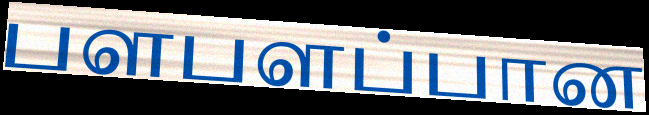
பளபளப்பான